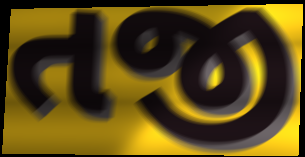
તજી